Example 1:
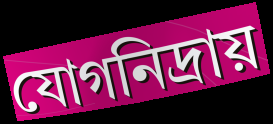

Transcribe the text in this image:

যোগনিদ্রায়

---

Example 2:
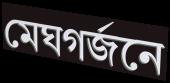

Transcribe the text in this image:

মেঘগর্জনে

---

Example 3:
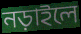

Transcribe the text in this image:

নড়াইলে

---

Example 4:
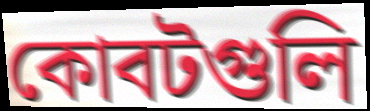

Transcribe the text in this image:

কোবটগুলি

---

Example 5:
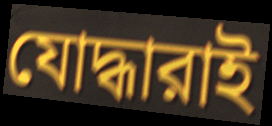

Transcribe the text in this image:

যোদ্ধারাই